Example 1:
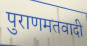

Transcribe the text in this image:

पुराणमतवादी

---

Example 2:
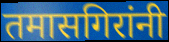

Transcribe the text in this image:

तमासगिरांनी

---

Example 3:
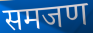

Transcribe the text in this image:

समजण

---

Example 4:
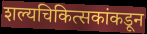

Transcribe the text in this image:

शल्यचिकित्सकांकडून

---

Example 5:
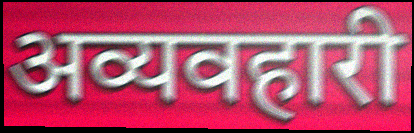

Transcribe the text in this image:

अव्यवहारी